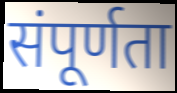
संपूर्णता